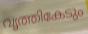
വൃത്തികേടും